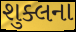
શુક્લના